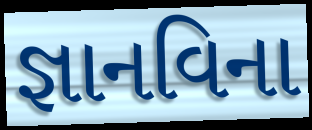
જ્ઞાનવિના